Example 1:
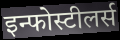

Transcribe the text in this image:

इन्फोस्टीलर्स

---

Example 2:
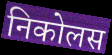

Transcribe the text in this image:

निकोलस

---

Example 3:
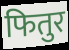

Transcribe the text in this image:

फितुर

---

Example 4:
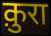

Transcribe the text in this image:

क़ुरा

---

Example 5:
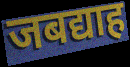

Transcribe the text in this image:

जबद्याह